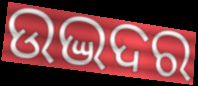
ଉଦ୍ଭଦର